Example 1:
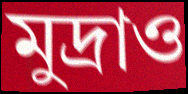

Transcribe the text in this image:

মুদ্রাও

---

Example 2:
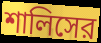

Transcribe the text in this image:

শালিসের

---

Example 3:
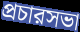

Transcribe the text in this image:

প্রচারসভা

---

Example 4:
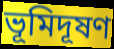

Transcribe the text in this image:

ভূমিদূষণ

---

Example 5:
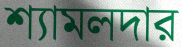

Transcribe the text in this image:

শ্যামলদার